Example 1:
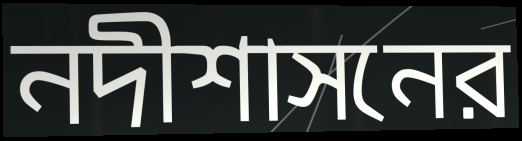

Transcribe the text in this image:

নদীশাসনের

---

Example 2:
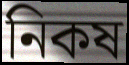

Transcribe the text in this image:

নিকষ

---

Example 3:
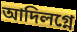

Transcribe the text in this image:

আদিলগ্নে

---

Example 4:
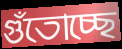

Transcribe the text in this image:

গুঁতোচ্ছে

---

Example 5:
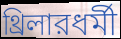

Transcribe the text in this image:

থ্রিলারধর্মী